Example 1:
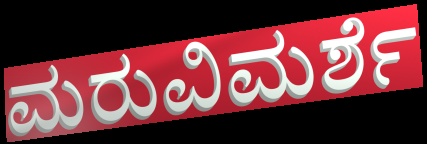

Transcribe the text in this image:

ಮರುವಿಮರ್ಶೆ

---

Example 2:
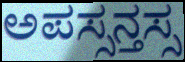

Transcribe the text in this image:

ಅಪಸ್ಸನ್ತಸ್ಸ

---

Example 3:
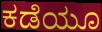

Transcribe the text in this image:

ಕಡೆಯೂ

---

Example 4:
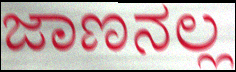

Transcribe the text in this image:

ಜಾಣನಲ್ಲ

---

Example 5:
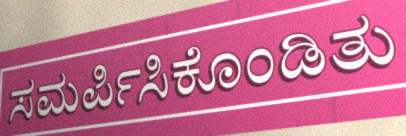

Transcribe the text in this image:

ಸಮರ್ಪಿಸಿಕೊಂಡಿತು